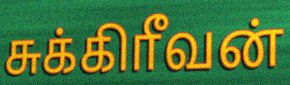
சுக்கிரீவன்